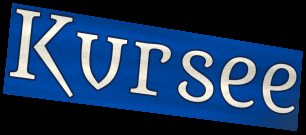
Kursee